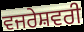
ਵਜਰੇਸ਼ਵਰੀ